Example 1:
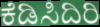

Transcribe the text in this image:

ಕೆಡಿಸಿದಿರಿ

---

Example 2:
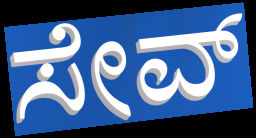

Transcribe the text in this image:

ಸೇವ್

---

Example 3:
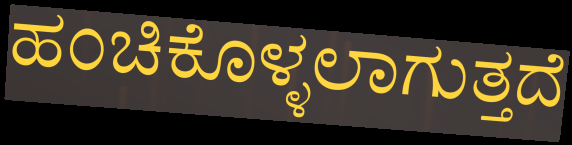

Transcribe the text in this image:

ಹಂಚಿಕೊಳ್ಳಲಾಗುತ್ತದೆ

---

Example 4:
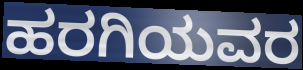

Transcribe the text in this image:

ಹರಗಿಯವರ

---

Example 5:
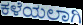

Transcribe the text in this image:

ಕಳೆಯಲಾಗಿ